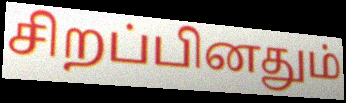
சிறப்பினதும்